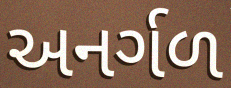
અનર્ગળ